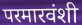
परमारवंशी